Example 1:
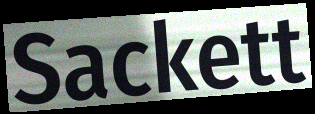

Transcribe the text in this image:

Sackett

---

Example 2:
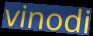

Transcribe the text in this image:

vinodi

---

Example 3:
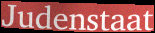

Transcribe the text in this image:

Judenstaat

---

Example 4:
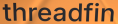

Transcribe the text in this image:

threadfin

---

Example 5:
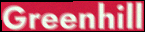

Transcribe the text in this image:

Greenhill